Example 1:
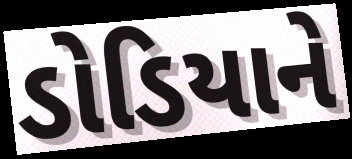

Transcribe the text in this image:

ડોડિયાને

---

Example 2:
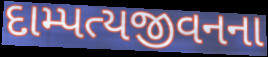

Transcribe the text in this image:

દામ્પત્યજીવનના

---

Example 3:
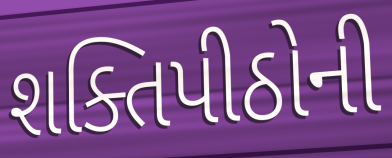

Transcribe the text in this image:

શક્તિપીઠોની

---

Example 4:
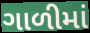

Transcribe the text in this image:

ગાળીમાં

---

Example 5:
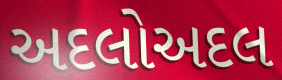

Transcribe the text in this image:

અદલોઅદલ